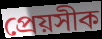
প্ৰেয়সীক